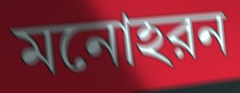
মনোহরন